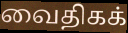
வைதிகக்